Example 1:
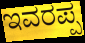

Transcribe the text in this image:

ಇವರಪ್ಪ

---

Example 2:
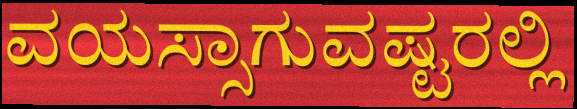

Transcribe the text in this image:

ವಯಸ್ಸಾಗುವಷ್ಟರಲ್ಲಿ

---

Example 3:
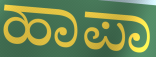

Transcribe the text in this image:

ಹಾಪಾ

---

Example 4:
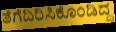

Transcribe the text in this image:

ತೆಗೆದಿರಿಸಿಕೊಂಡಿದ್ದ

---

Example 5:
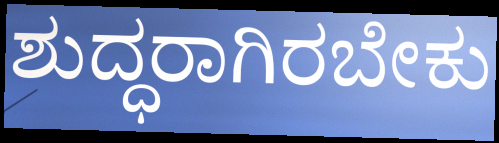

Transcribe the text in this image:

ಶುದ್ಧರಾಗಿರಬೇಕು